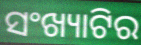
ସଂଖ୍ୟାଟିର